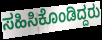
ಸಹಿಸಿಕೊಂಡಿದ್ದರು